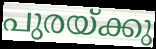
പുരയ്ക്കു